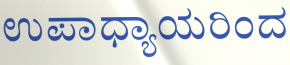
ಉಪಾಧ್ಯಾಯರಿಂದ